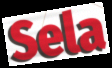
Sela